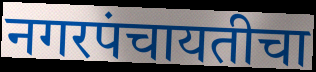
नगरपंचायतीचा